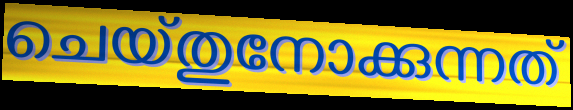
ചെയ്തുനോക്കുന്നത്